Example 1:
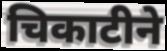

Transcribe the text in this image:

चिकाटीने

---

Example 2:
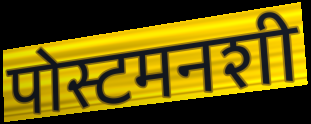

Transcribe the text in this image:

पोस्टमनशी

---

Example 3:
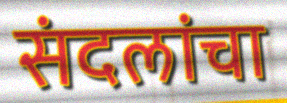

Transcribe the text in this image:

संदलांचा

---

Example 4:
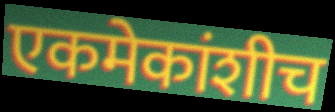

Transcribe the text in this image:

एकमेकांशीच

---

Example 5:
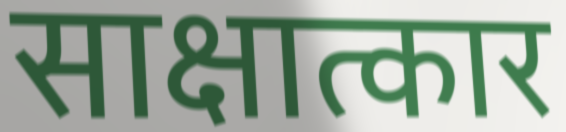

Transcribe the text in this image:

साक्षात्कार